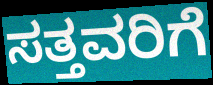
ಸತ್ತವರಿಗೆ